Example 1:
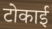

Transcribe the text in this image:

टोकाई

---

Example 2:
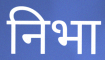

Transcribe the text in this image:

निभा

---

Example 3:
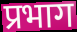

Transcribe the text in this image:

प्रभाग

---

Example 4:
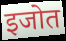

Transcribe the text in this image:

इजोत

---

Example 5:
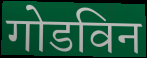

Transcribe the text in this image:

गोडविन